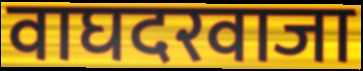
वाघदरवाजा